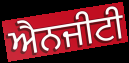
ਐਨਜੀਟੀ